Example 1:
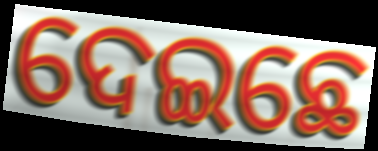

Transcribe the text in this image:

ଦେଇଛେ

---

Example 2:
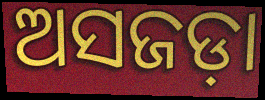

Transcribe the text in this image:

ଅସଜଡ଼ା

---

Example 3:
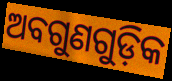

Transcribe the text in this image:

ଅବଗୁଣଗୁଡ଼ିକ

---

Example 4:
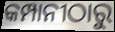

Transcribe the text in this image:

କମ୍ପାନୀଠାରୁ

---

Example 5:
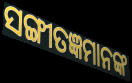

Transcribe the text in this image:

ସଙ୍ଗୀତଜ୍ଞମାନଙ୍କ